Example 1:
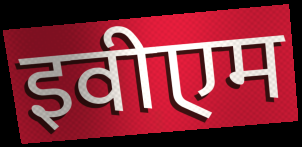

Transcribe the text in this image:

इवीएम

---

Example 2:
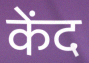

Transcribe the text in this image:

केंद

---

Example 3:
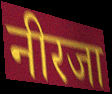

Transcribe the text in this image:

नीरजा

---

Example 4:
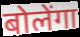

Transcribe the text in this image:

बोलेंगा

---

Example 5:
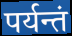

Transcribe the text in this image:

पर्यन्तं